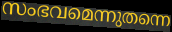
സംഭവമെന്നുതന്നെ